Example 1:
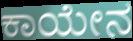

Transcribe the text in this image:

ಕಾಯೇನ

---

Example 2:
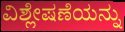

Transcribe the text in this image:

ವಿಶ್ಲೇಷಣೆಯನ್ನು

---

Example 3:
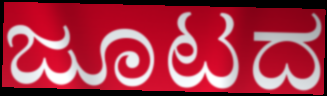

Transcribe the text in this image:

ಜೂಟದ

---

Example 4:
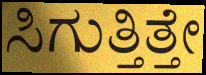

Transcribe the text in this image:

ಸಿಗುತ್ತಿತ್ತೇ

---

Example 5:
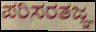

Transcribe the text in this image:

ಪರಿಸರತಜ್ಞ